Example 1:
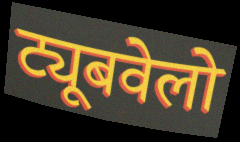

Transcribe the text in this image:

ट्यूबवेलो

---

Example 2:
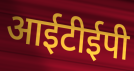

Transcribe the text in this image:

आईटीईपी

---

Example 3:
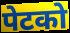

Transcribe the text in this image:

पेटको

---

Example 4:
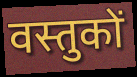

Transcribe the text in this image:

वस्तुकों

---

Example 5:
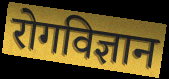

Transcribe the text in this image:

रोगविज्ञान